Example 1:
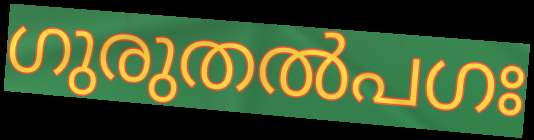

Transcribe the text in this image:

ഗുരുതൽപഗഃ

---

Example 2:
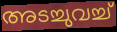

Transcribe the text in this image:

അടച്ചുവച്ച്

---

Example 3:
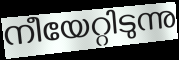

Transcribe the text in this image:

നീയേറ്റിടുന്നു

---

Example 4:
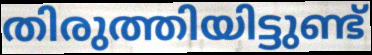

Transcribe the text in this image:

തിരുത്തിയിട്ടുണ്ട്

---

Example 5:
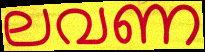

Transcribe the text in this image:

ലവണ